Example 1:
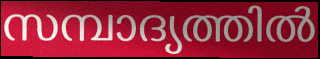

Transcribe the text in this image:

സമ്പാദ്യത്തിൽ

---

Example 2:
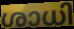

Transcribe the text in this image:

ശാധി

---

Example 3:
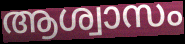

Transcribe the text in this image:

ആശ്വാസം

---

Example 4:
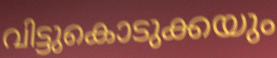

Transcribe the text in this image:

വിട്ടുകൊടുക്കയും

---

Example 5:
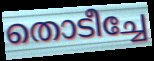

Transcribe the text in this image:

തൊടീച്ചേ